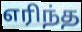
எரிந்த